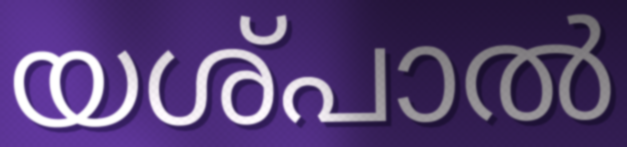
യശ്പാൽ